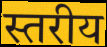
स्तरीय